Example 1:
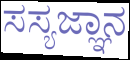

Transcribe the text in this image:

ಸಸ್ಯಜ್ಞಾನ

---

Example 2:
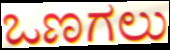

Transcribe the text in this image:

ಒಣಗಲು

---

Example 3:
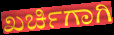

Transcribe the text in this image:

ಖರ್ಚಿಗಾಗಿ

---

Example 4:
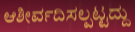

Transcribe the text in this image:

ಆಶೀರ್ವದಿಸಲ್ಪಟ್ಟದ್ದು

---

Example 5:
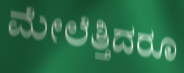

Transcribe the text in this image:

ಮೇಲೆತ್ತಿದರೂ